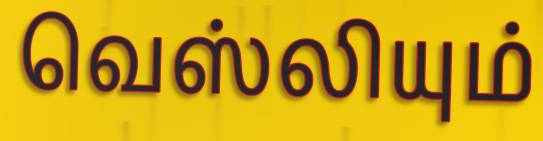
வெஸ்லியும்